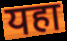
यहा